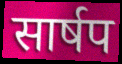
सार्षप